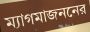
ম্যাগমাজননের